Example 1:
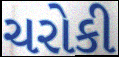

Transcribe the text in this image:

ચરોકી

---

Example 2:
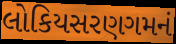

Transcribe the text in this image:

લોકિયસરણગમનં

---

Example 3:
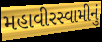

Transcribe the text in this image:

મહાવીરસ્વામીનું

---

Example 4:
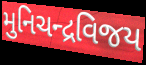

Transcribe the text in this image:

મુનિચન્દ્રવિજય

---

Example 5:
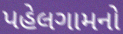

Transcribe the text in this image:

પહેલગામનો